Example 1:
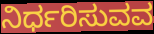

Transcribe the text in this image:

ನಿರ್ಧರಿಸುವವ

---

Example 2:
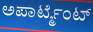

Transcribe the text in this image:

ಅಪಾರ್ಟ್ಮೆಂಟ್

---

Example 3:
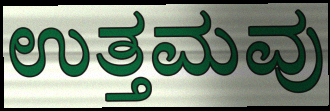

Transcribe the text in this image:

ಉತ್ತಮವು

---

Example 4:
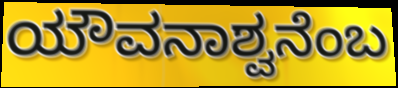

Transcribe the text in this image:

ಯೌವನಾಶ್ವನೆಂಬ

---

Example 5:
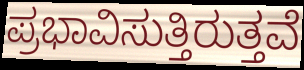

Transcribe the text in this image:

ಪ್ರಭಾವಿಸುತ್ತಿರುತ್ತವೆ